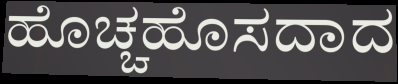
ಹೊಚ್ಚಹೊಸದಾದ